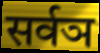
सर्वञ